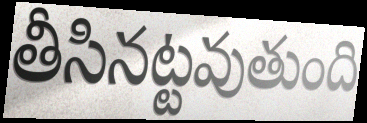
తీసినట్టవుతుంది